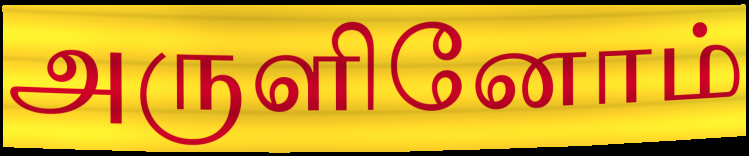
அருளினோம்